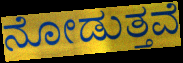
ನೋಡುತ್ತವೆ